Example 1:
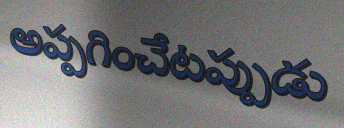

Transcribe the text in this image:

అప్పగించేటప్పుడు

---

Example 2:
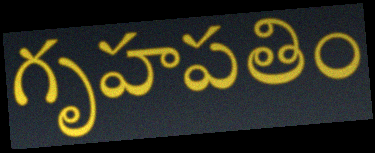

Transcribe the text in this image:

గృహపతిం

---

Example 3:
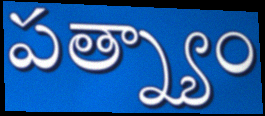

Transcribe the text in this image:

పత్న్యాం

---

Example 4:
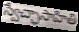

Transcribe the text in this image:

స్వేచ్ఛాసాహితి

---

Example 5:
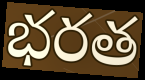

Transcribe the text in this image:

భరత